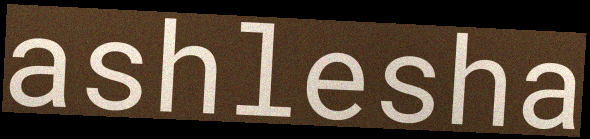
ashlesha